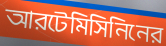
আরটেমিসিনিনের